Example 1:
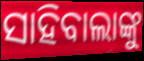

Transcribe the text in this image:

ସାହିବାଲାଙ୍କୁ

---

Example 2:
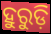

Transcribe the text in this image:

ହୁରୁଡ଼ି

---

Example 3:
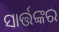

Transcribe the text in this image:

ସାର୍ତ୍ତଙ୍କର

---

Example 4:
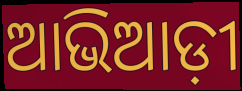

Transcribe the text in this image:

ଆଭିଆଡ଼ୀ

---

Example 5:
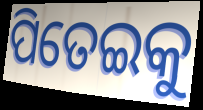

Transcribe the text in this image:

ପିତେଇକୁ